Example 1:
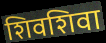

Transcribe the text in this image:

शिवशिवा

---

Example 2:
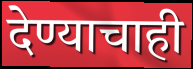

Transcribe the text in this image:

देण्याचाही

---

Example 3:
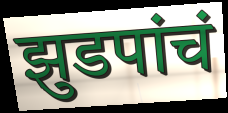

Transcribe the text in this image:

झुडपांचं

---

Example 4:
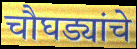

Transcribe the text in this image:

चौघड्यांचे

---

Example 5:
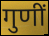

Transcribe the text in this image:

गुणीं